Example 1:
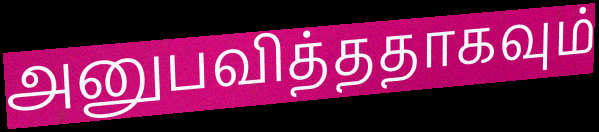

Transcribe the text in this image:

அனுபவித்ததாகவும்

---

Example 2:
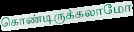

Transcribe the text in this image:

கொண்டிருக்கலாமோ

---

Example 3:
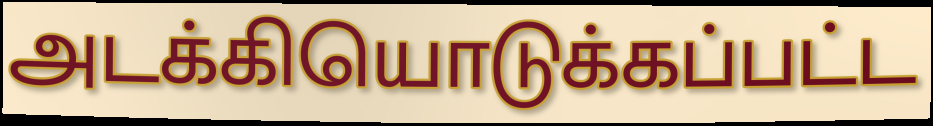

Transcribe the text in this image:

அடக்கியொடுக்கப்பட்ட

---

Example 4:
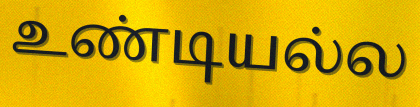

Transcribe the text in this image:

உண்டியல்ல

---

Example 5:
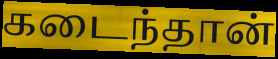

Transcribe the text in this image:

கடைந்தான்